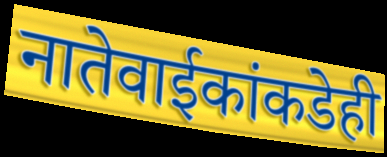
नातेवाईकांकडेही